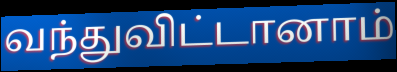
வந்துவிட்டானாம்